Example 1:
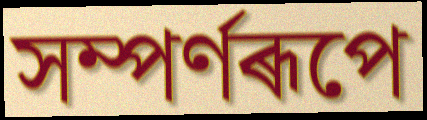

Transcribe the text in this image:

সম্পৰ্ণৰূপে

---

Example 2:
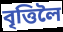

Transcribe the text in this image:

বৃত্তিলৈ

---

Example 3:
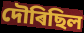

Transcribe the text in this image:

দৌৰিছিল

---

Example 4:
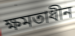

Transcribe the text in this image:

ক্ষমতাধীন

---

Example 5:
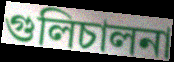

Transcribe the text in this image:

গুলিচালনা